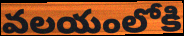
వలయంలోకి